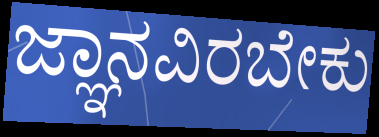
ಜ್ಞಾನವಿರಬೇಕು